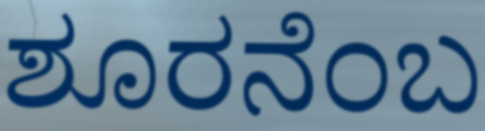
ಶೂರನೆಂಬ